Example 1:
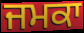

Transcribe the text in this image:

ਜਮਕਾ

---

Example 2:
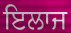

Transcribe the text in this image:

ਇਲਾਜ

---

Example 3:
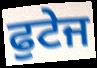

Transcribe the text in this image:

ਫੁਟੇਜ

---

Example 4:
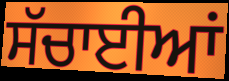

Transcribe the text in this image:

ਸੱਚਾਈਆਂ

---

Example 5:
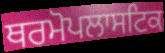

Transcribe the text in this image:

ਥਰਮੋਪਲਾਸਟਿਕ